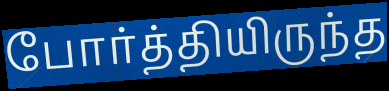
போர்த்தியிருந்த